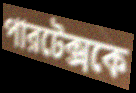
পারটেক্সকে